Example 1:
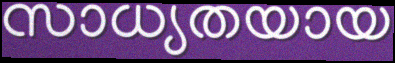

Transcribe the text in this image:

സാധ്യതയായ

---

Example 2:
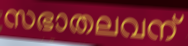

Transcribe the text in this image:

സഭാതലവന്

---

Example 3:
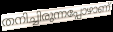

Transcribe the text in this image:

തനിച്ചിരുന്നപ്പോഴാണ്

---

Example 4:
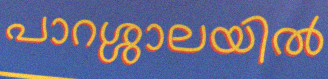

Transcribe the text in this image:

പാറശ്ശാലയിൽ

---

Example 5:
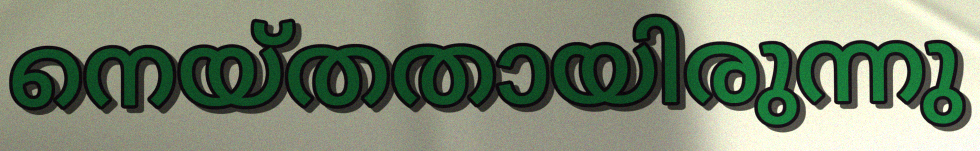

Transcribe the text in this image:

നെയ്തതായിരുന്നു